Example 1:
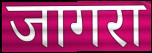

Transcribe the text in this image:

जागरा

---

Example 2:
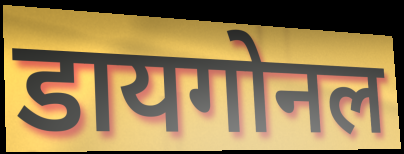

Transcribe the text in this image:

डायगोनल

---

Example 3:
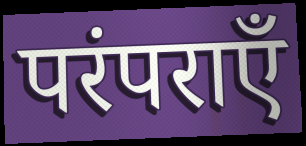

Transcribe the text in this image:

परंपराएँ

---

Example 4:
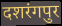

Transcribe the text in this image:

दशरंगपुर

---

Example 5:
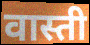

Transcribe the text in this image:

वास्ती